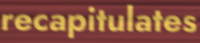
recapitulates